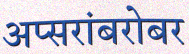
अप्सरांबरोबर